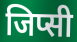
जिप्सी